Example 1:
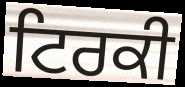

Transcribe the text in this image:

ਟਿਰਕੀ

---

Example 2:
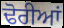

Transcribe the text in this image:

ਢੋਰੀਆਂ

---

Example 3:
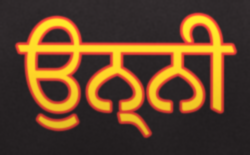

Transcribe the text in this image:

ਉਨ੍ਨੀ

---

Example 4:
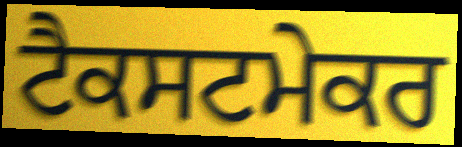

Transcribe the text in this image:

ਟੈਕਸਟਮੇਕਰ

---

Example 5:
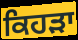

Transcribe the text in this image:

ਕਿਹੜਾ